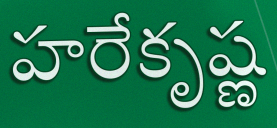
హరేకృష్ణ